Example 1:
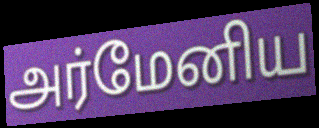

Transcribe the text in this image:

அர்மேனிய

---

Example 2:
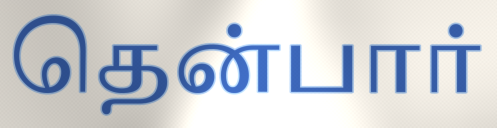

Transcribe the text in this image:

தென்பார்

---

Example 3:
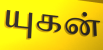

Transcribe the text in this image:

யுகன்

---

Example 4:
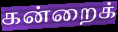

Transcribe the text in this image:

கன்றைக்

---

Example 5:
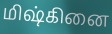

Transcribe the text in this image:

மிஷ்கினை